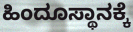
ಹಿಂದೂಸ್ಥಾನಕ್ಕೆ